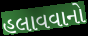
હલાવવાનો